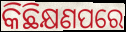
କିଛିକ୍ଷଣପରେ